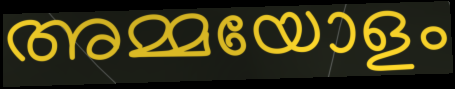
അമ്മയോളം